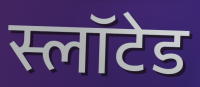
स्लॉटेड